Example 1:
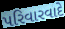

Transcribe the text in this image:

પરિવારવાદે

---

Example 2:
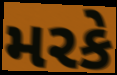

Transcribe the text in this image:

મરકે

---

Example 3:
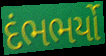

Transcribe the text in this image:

દંભભર્યો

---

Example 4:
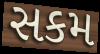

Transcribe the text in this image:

સકમ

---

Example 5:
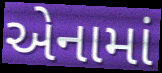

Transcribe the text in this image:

એનામાં